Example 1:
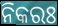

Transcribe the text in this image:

ନିକରଃ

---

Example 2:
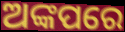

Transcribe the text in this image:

ଅଙ୍କପରେ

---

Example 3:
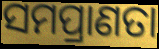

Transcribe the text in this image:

ସମପ୍ରାଣତା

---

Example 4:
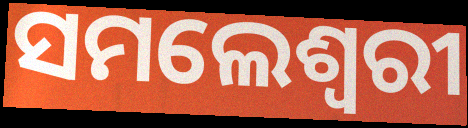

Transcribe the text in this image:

ସମଲେଶ୍ୱରୀ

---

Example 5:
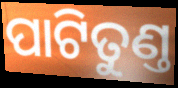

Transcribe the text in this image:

ପାଟିତୁଣ୍ତ